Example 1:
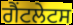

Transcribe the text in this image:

ਗੈਂਟਲੇਟਸ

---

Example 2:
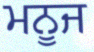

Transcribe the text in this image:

ਮਨੂਜ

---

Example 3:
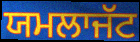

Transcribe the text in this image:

ਯਮਲਾਜੱਟ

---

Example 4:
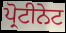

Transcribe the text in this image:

ਪ੍ਰੋਟੀਨੇਟ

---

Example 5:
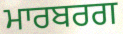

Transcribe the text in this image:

ਮਾਰਬਰਗ